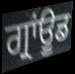
ਗ੍ਰਾਂਊਡ